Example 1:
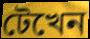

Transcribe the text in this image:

টেখেন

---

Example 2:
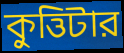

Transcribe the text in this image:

কুত্তিটার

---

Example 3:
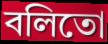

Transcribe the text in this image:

বলিতো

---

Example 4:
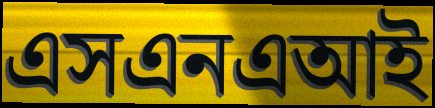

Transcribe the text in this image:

এসএনএআই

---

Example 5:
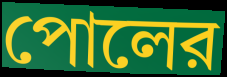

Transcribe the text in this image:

পোলের